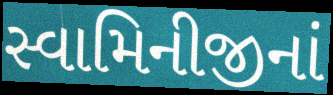
સ્વામિનીજીનાં